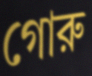
গোরু